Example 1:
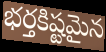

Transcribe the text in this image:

భర్తకిష్టమైన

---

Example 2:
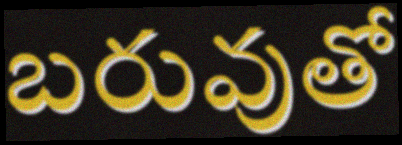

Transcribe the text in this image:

బరువుతో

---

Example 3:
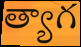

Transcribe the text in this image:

త్యాగ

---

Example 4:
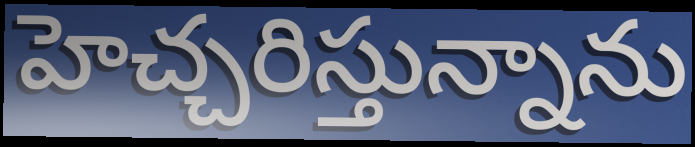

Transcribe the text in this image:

హెచ్చరిస్తున్నాను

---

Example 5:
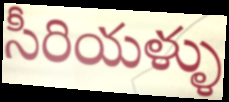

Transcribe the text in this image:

సీరియళ్ళు